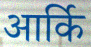
आर्कि